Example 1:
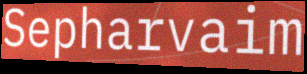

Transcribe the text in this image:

Sepharvaim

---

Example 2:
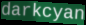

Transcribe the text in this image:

darkcyan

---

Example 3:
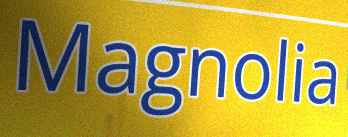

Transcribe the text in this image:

Magnolia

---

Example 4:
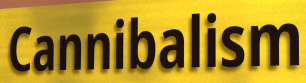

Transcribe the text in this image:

Cannibalism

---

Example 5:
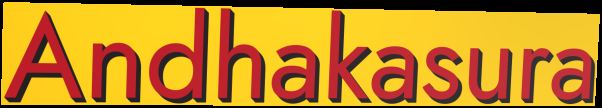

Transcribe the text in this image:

Andhakasura